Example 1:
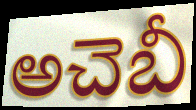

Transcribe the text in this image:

అచెబీ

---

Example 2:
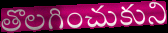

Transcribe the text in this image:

తొలగించుకుని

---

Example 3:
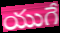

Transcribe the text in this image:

యుగే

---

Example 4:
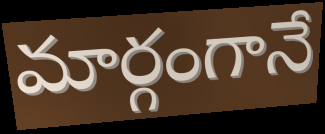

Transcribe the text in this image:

మార్గంగానే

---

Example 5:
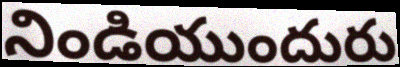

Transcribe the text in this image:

నిండియుందురు